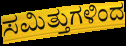
ಸಮಿತ್ತುಗಳಿಂದ